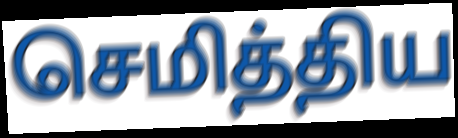
செமித்திய